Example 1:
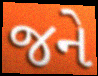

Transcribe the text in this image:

જને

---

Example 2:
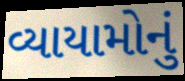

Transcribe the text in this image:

વ્યાયામોનું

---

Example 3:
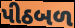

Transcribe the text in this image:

પીઠબળ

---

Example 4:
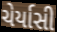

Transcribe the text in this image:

ચેર્યાસી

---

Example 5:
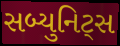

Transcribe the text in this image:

સબ્યુનિટ્સ